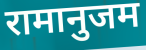
रामानुजम